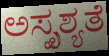
ಅಸ್ಪೃಶ್ಯತೆ